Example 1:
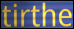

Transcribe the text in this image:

tirthe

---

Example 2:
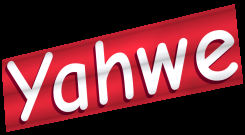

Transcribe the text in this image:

Yahwe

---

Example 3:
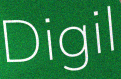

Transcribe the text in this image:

Digil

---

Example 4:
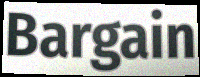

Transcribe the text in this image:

Bargain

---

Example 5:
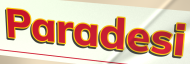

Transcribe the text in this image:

Paradesi